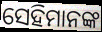
ସେହିମାନଙ୍କ